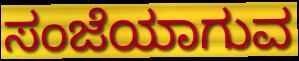
ಸಂಜೆಯಾಗುವ